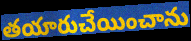
తయారుచేయించాను